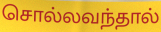
சொல்லவந்தால்